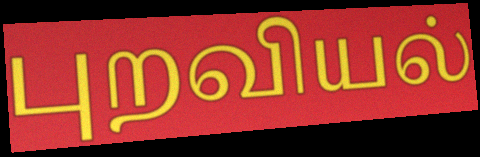
புறவியல்